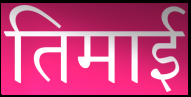
तिमाई